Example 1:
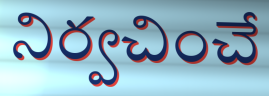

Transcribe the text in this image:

నిర్వచించే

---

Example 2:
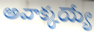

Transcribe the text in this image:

అవాక్కయ్యే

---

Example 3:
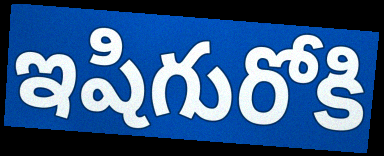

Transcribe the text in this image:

ఇషిగురోకి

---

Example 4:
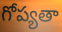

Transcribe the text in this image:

గోప్యతా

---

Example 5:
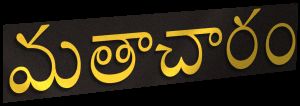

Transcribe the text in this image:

మతాచారం